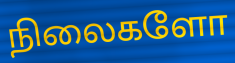
நிலைகளோ